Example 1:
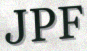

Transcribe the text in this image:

JPF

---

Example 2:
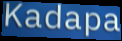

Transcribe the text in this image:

Kadapa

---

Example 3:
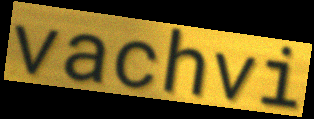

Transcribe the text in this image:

vachvi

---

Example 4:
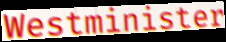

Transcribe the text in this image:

Westminister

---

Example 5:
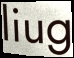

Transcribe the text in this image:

liug